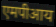
एमपीआय